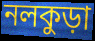
নলকুড়া